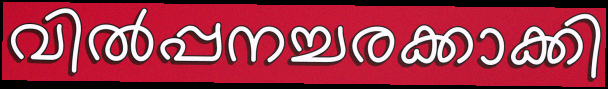
വിൽപ്പനച്ചരക്കാക്കി